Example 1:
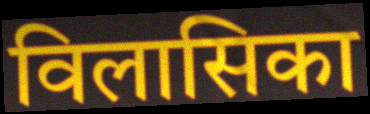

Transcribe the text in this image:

विलासिका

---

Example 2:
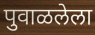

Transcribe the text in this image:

पुवाळलेला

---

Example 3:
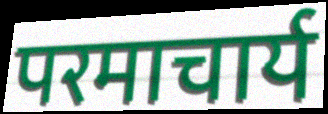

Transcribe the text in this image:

परमाचार्य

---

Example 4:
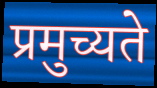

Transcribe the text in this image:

प्रमुच्यते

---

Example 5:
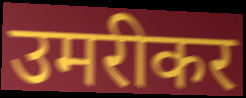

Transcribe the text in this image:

उमरीकर